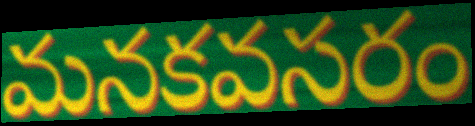
మనకవసరం